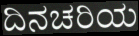
ದಿನಚರಿಯ